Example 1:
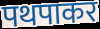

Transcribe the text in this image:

पथपाकर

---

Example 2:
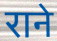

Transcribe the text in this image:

राने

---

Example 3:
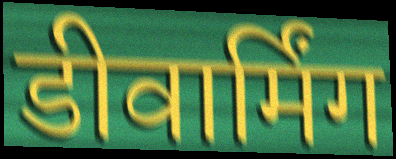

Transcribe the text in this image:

डीवार्मिंग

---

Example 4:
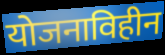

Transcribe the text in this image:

योजनाविहीन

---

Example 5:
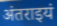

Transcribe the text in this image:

अंतराइयं